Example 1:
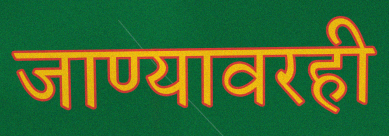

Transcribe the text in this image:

जाण्यावरही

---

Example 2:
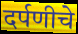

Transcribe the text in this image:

दर्पणीचे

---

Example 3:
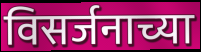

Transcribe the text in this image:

विसर्जनाच्या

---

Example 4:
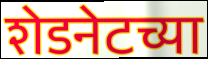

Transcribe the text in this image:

शेडनेटच्या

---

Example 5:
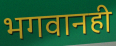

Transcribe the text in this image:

भगवानही